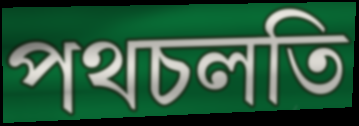
পথচলতি